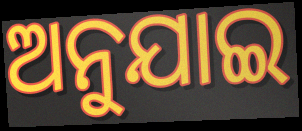
ଅନୁଯାଇ